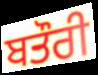
ਬਤੌਰੀ